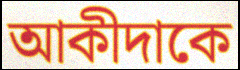
আকীদাকে